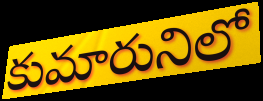
కుమారునిలో